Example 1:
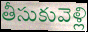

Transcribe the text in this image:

తీసుకువెళ్లి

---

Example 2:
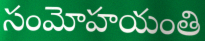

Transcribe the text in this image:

సంమోహయంతి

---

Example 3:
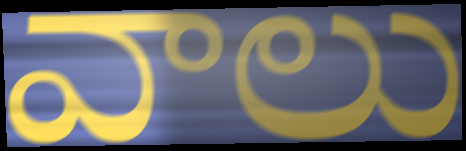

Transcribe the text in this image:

వాలు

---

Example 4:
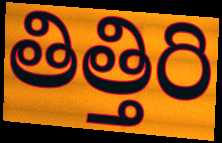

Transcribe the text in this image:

తిత్తిరి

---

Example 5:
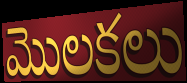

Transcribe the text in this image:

మొలకలు